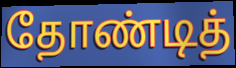
தோண்டித்